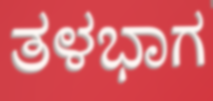
ತಳಭಾಗ